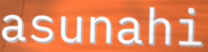
asunahi